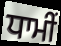
ਧਾਮੀਂ